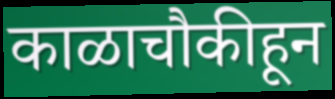
काळाचौकीहून